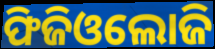
ଫିଜିଓଲୋଜି